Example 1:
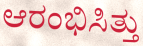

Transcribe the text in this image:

ಆರಂಭಿಸಿತ್ತು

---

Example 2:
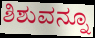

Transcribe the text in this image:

ಶಿಶುವನ್ನೂ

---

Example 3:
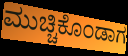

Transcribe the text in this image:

ಮುಚ್ಚಿಕೊಂಡಾಗ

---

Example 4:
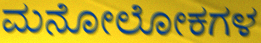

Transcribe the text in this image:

ಮನೋಲೋಕಗಳ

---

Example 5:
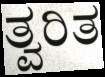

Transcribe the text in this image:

ತ್ವರಿತ